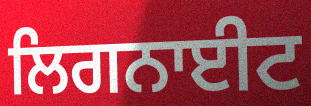
ਲਿਗਨਾਈਟ